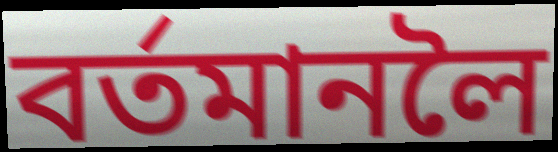
বৰ্তমানলৈ